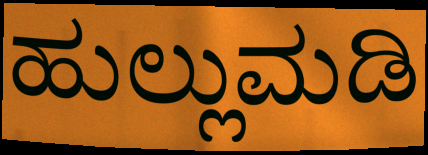
ಹುಲ್ಲುಮಡಿ